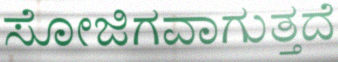
ಸೋಜಿಗವಾಗುತ್ತದೆ